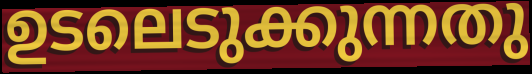
ഉടലെടുക്കുന്നതു